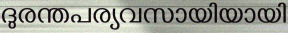
ദുരന്തപര്യവസായിയായി